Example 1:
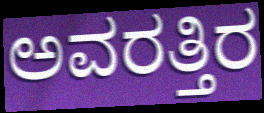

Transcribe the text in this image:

ಅವರತ್ತಿರ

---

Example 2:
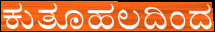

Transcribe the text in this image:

ಕುತೂಹಲದಿಂದ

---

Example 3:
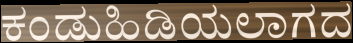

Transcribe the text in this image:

ಕಂಡುಹಿಡಿಯಲಾಗದ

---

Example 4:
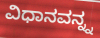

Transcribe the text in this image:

ವಿಧಾನವನ್ನ್ನ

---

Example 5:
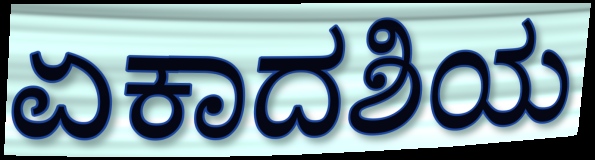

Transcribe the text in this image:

ಏಕಾದಶಿಯ